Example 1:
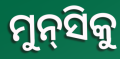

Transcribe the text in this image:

ମୁନ୍‌ସିକୁ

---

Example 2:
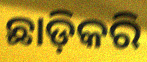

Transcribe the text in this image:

ଛାଡ଼ିକରି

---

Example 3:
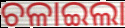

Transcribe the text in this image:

ଚଳାଇଲା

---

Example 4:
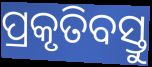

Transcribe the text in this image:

ପ୍ରକୃତିବସ୍ତୁ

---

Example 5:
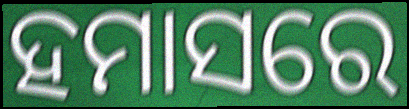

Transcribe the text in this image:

ହମାସରେ